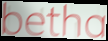
betha